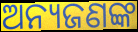
ଅନ୍ୟଜଣଙ୍କ